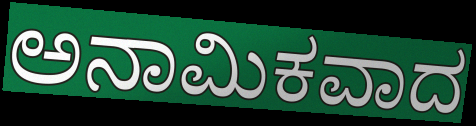
ಅನಾಮಿಕವಾದ